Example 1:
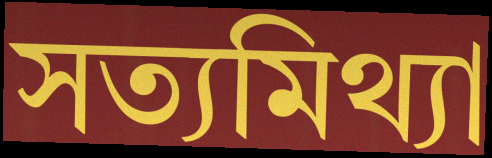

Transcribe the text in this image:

সত্যমিথ্যা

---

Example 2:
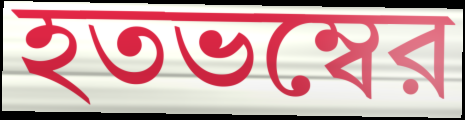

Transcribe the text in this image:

হতভম্বের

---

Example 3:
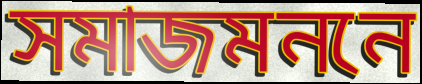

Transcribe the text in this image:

সমাজমননে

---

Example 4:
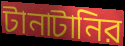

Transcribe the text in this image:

টানাটানির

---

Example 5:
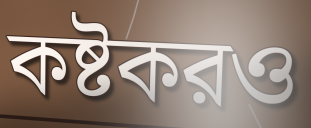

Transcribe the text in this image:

কষ্টকরও